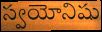
స్వయోనిషు